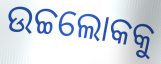
ଉଚ୍ଚଲୋକକୁ